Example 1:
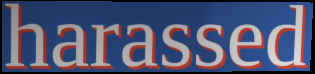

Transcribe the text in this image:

harassed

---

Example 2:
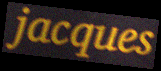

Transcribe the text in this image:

jacques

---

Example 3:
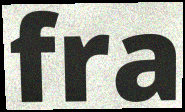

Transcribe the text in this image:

fra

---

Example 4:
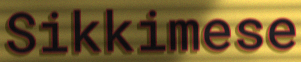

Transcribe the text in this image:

Sikkimese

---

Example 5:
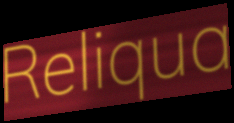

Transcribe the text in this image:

Reliqua